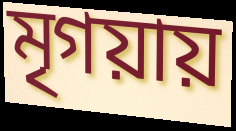
মৃগয়ায়